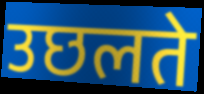
उछलते